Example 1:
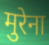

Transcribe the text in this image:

मुरेना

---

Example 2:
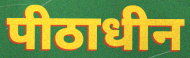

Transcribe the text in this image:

पीठाधीन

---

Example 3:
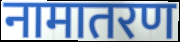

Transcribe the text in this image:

नामातरण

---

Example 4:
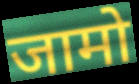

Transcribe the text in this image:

जामो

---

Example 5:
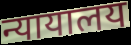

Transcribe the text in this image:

न्यायालय